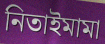
নিতাইমামা